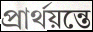
প্রার্থয়ন্তে